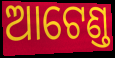
ଆଟେଣ୍ଡ